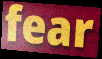
fear